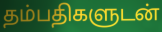
தம்பதிகளுடன்